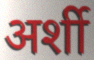
अर्शी